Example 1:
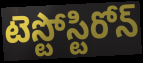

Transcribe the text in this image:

టెస్టోస్టిరోన్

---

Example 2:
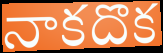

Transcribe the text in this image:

నాకదొక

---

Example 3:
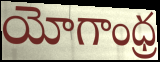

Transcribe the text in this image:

యోగాంధ్ర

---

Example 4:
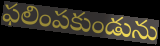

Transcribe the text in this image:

ఫలింపకుండును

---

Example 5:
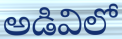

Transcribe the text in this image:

అడివిలో